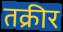
तक्रीर